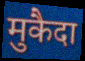
मुकैदा